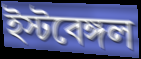
ইস্টবেঙ্গল